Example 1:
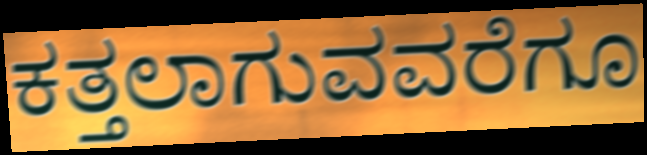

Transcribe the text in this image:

ಕತ್ತಲಾಗುವವರೆಗೂ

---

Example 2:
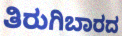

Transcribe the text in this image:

ತಿರುಗಿಬಾರದ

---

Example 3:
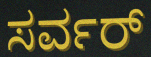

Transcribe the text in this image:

ಸರ್ವರ್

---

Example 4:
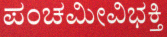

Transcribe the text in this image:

ಪಂಚಮೀವಿಭಕ್ತಿ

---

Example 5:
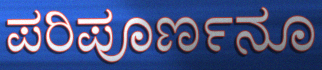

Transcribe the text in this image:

ಪರಿಪೂರ್ಣನೂ